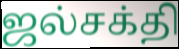
ஜல்சக்தி